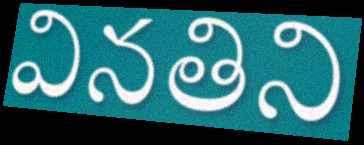
వినతిని